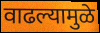
वाढल्यामुळे